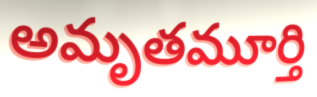
అమృతమూర్తి